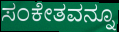
ಸಂಕೇತವನ್ನೂ